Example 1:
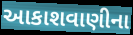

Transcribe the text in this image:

આકાશવાણીના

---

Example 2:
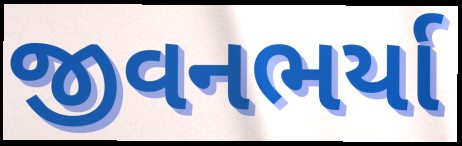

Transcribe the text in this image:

જીવનભર્યા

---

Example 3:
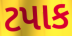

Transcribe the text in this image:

ટપાક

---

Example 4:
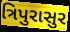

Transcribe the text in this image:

ત્રિપુરાસુર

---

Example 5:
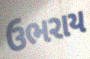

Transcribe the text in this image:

ઉભરાય